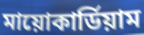
মায়োকার্ডিয়াম